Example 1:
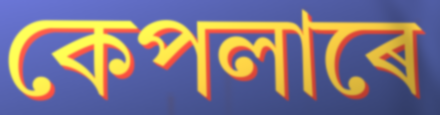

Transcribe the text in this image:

কেপলাৰে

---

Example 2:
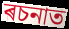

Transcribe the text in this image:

ৰচনাত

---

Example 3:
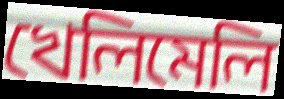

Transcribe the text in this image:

খেলিমেলি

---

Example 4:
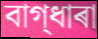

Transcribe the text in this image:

বাগ্‌ধাৰা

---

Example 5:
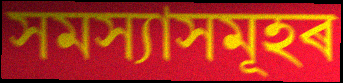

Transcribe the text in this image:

সমস্যাসমূহৰ